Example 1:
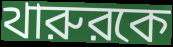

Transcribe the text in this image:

থারুরকে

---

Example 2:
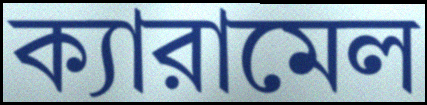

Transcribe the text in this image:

ক্যারামেল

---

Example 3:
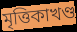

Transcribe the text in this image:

মৃত্তিকাখণ্ড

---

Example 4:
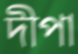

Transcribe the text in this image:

দীপা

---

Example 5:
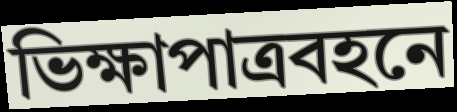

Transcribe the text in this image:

ভিক্ষাপাত্রবহনে